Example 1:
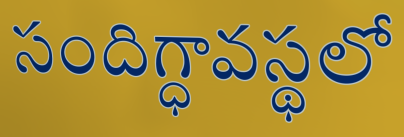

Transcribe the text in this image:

సందిగ్ధావస్థలో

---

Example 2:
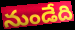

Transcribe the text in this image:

నుండేది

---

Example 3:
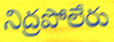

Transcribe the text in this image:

నిద్రపోలేరు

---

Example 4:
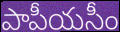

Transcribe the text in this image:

పాపీయసీం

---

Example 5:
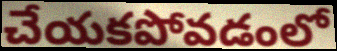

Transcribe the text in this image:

చేయకపోవడంలో